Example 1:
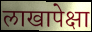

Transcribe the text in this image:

लाखापेक्षा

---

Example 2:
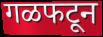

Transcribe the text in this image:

गळफटून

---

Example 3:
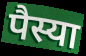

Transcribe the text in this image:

पैस्या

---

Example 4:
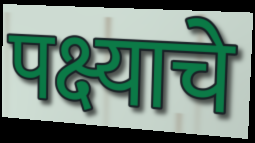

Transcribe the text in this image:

पक्ष्याचे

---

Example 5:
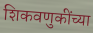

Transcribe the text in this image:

शिकवणुकींच्या